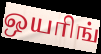
ஒயரிங்